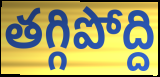
తగ్గిపోద్ది